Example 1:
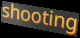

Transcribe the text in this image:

shooting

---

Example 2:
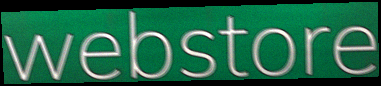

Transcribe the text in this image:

webstore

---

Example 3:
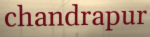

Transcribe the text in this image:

chandrapur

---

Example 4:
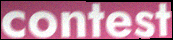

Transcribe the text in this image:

contest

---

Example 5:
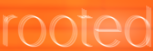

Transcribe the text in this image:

rooted